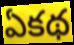
ఏకథ